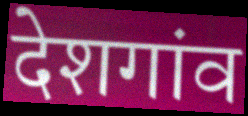
देशगांव